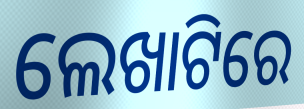
ଲେଖାଟିରେ